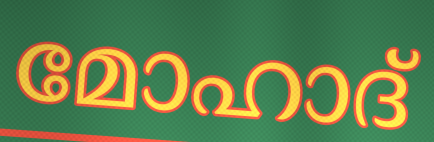
മോഹാദ്